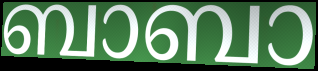
ബാബാ